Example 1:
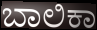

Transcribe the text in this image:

ಬಾಲಿಕಾ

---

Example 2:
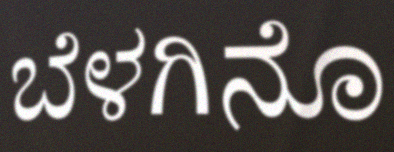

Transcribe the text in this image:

ಬೆಳಗಿನೊ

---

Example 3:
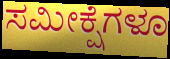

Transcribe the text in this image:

ಸಮೀಕ್ಷೆಗಳೂ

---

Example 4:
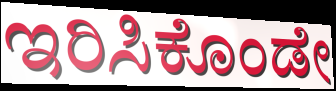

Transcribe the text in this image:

ಇರಿಸಿಕೊಂಡೇ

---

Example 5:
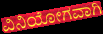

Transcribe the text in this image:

ವಿನಿಯೋಗವಾಗಿ